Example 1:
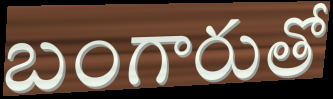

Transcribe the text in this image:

బంగారుతో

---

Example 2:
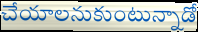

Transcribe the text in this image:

చేయాలనుకుంటున్నాడో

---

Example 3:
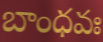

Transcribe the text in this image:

బాంధవః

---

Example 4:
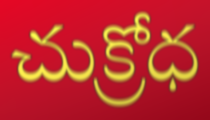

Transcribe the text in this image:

చుక్రోధ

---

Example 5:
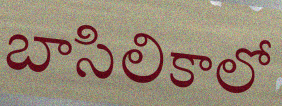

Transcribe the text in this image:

బాసిలికాలో